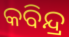
କବିନ୍ଦ୍ର